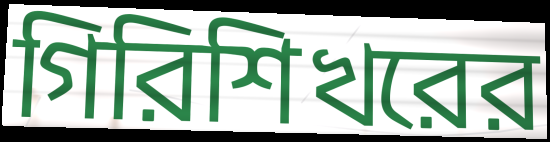
গিরিশিখরের